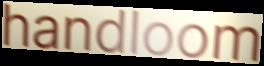
handloom